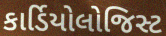
કાર્ડિયોલોજિસ્ટ